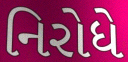
નિરોધે